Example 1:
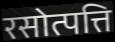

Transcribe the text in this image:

रसोत्पत्ति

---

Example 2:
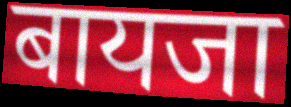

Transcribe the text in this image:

बायजा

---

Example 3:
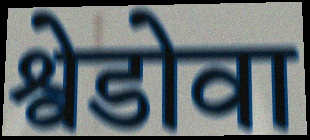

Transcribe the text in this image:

श्वेडोवा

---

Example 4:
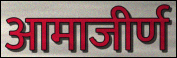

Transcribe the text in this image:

आमाजीर्ण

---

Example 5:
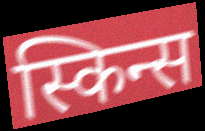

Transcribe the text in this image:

स्किन्स